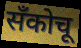
सँकोचू